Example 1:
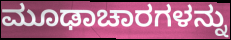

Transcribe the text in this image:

ಮೂಢಾಚಾರಗಳನ್ನು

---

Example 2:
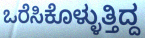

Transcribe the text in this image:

ಒರೆಸಿಕೊಳ್ಳುತ್ತಿದ್ದ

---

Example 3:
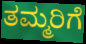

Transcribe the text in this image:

ತಮ್ಮರಿಗೆ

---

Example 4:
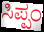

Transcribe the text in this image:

ಸಿಪ್ಪಂ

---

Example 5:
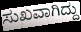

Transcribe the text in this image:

ಸುಖವಾಗಿದ್ದು